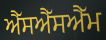
ਐੱਸਐੱਸਐੱਮ